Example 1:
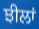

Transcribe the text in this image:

ਝੀਲਾਂ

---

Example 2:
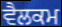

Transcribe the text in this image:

ਵੈਲਕਮ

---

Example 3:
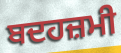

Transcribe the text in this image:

ਬਦਹਜ਼ਮੀ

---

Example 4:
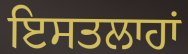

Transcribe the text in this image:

ਇਸਤਲਾਹਾਂ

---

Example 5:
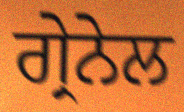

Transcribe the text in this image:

ਗ੍ਰੇਨੇਲ